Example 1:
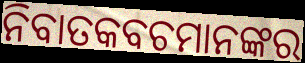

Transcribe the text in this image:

ନିବାତକବଚମାନଙ୍କର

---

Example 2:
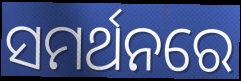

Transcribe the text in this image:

ସମର୍ଥନରେ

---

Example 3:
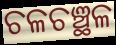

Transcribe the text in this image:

ଚଳଚଞ୍ଛଳ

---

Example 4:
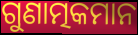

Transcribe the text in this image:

ଗୁଣାତ୍ମକମାନ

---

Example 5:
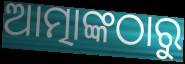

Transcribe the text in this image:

ଆତ୍ମାଙ୍କଠାରୁ